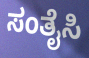
ಸಂತೈಸಿ